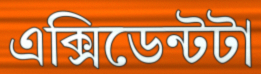
এক্সিডেন্টটা